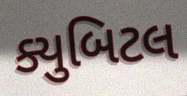
ક્યુબિટલ